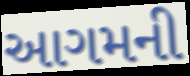
આગમની